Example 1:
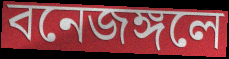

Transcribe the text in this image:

বনেজঙ্গলে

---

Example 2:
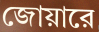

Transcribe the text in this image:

জোয়ারে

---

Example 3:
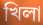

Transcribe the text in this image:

খিলা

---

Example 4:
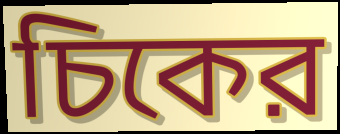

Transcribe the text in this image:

চিকের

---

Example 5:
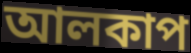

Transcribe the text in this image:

আলকাপ